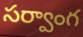
సర్వాంగ